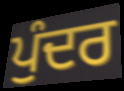
ਪੁੰਦਰ